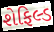
શેફિલ્ડ